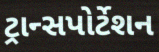
ટ્રાન્સપોર્ટેશન